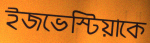
ইজভেস্টিয়াকে